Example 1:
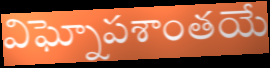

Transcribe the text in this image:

విఘ్నోపశాంతయే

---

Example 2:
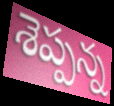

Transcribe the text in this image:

శెప్పన్న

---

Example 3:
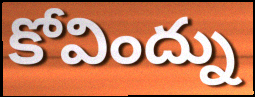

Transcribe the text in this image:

కోవింద్ను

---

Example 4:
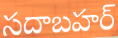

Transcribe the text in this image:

సదాబహర్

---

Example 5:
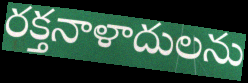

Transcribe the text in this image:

రక్తనాళాదులను